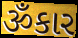
ૐકાર